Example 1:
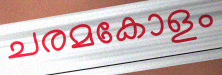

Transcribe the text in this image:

ചരമകോളം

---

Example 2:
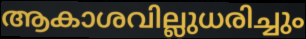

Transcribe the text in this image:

ആകാശവില്ലുധരിച്ചും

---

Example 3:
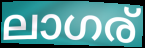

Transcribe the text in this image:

ലാഗര്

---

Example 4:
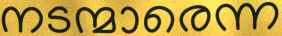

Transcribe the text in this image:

നടന്മാരെന്ന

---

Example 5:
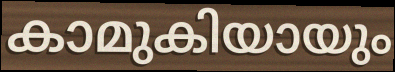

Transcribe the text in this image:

കാമുകിയായും